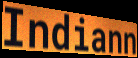
Indiann